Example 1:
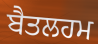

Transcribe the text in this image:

ਬੈਤਲਹਮ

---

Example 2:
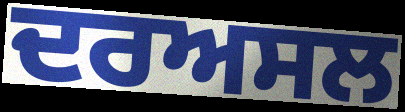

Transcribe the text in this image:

ਦਰਅਸਲ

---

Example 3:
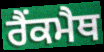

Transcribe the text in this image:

ਰੈਂਕਮੈਥ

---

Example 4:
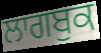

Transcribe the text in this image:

ਲਾਗਬੁਕ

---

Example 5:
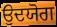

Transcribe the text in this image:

ਉਦਯੋਗ